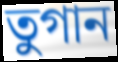
তুগান